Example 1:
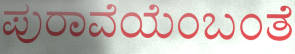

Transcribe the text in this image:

ಪುರಾವೆಯೆಂಬಂತೆ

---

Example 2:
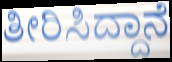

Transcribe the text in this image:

ತೀರಿಸಿದ್ದಾನೆ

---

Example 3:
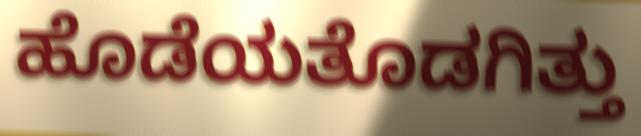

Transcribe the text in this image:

ಹೊಡೆಯತೊಡಗಿತ್ತು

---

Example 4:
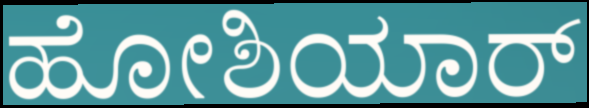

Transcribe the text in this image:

ಹೋಶಿಯಾರ್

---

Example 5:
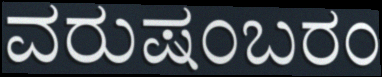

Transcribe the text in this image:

ವರುಷಂಬರಂ